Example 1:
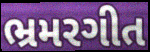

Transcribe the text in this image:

ભ્રમરગીત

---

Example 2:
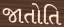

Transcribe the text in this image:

જાતોતિ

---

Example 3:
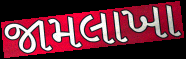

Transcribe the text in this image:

જામલાખા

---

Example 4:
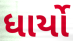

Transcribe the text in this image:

ધાર્યો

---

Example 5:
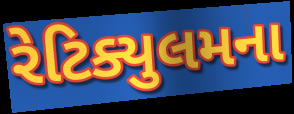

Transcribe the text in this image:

રેટિક્યુલમના